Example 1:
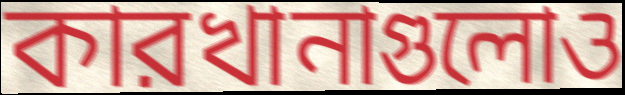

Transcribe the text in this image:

কারখানাগুলোও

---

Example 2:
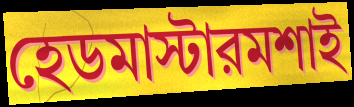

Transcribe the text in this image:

হেডমাস্টারমশাই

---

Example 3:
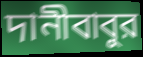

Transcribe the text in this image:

দানীবাবুর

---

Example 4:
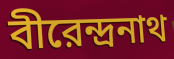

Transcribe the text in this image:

বীরেন্দ্রনাথ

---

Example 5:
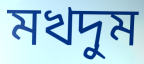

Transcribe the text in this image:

মখদুম